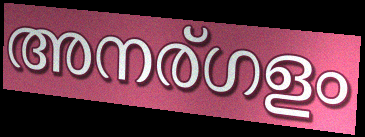
അനര്ഗളം